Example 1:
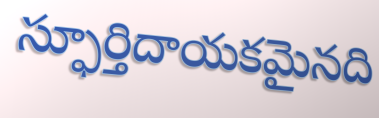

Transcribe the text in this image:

స్ఫూర్తిదాయకమైనది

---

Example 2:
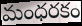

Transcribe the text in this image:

మంధరకం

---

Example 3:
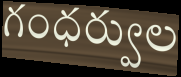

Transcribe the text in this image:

గంధర్వుల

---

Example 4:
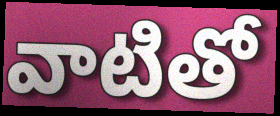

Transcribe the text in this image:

వాటితో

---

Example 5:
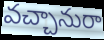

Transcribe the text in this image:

వచ్చానురా